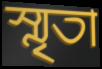
স্মৃতা